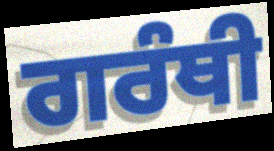
ਗਰੰਥੀ